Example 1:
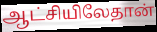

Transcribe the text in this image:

ஆட்சியிலேதான்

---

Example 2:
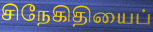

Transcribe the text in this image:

சிநேகிதியைப்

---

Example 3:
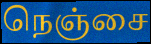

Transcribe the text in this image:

நெஞ்சை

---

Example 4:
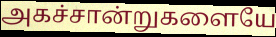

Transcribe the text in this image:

அகச்சான்றுகளையே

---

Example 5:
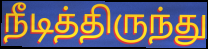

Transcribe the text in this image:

நீடித்திருந்து